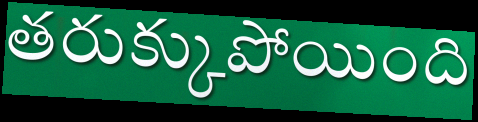
తరుక్కుపోయింది